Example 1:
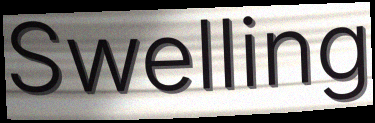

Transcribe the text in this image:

Swelling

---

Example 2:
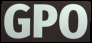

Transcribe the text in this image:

GPO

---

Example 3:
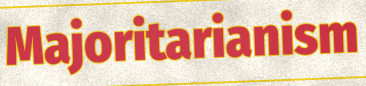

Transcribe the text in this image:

Majoritarianism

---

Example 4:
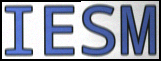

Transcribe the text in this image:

IESM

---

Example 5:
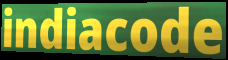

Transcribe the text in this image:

indiacode